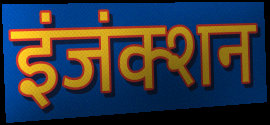
इंजंक्शन